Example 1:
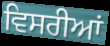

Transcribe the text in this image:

ਵਿਸਰੀਆਂ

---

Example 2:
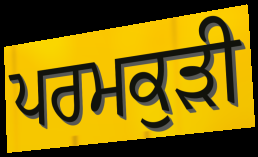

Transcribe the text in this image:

ਪਰਮਕੁੜੀ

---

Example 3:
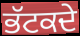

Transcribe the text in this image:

ਭੱਟਕਦੇ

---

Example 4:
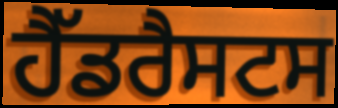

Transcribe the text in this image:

ਹੈੱਡਰੈਸਟਸ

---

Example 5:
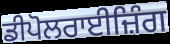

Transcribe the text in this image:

ਡੀਪੋਲਰਾਈਜ਼ਿੰਗ